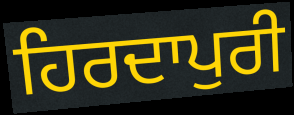
ਹਿਰਦਾਪੁਰੀ